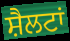
ਸ਼ੈਲਟਾਂ